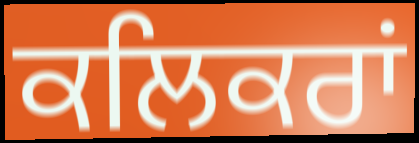
ਕਲਿਕਰਾਂ